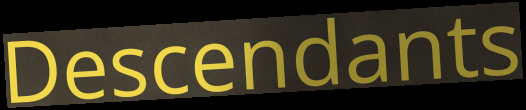
Descendants